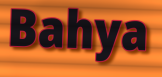
Bahya